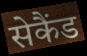
सेकैंड